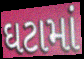
ઘટામાં